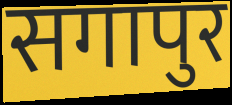
सगापुर